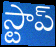
స్టాప్